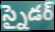
స్నైడర్